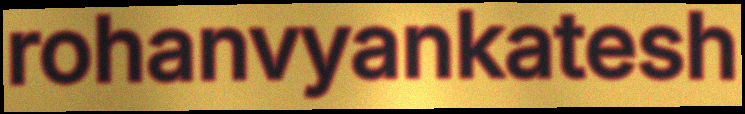
rohanvyankatesh